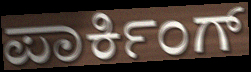
ಪಾರ್ಕಿಂಗ್